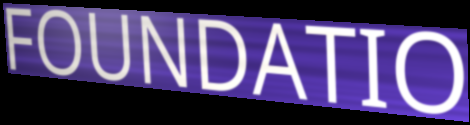
FOUNDATIO